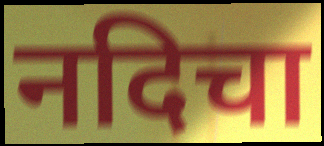
नदिचा